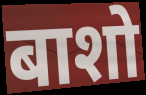
बाशो